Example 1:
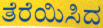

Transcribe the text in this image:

ತೆರೆಯಿಸಿದ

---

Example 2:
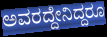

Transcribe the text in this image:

ಅವರದ್ದೇನಿದ್ದರೂ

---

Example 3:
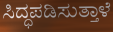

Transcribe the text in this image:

ಸಿದ್ಧಪಡಿಸುತ್ತಾಳೆ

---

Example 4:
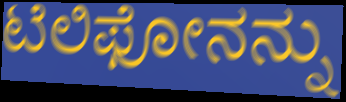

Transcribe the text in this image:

ಟೆಲಿಫೋನನ್ನು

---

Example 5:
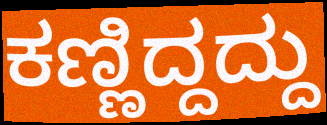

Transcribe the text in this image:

ಕಣ್ಣಿದ್ದದ್ದು